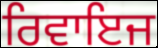
ਰਿਵਾਇਜ